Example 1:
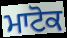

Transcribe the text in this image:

ਮਾਟੋਕ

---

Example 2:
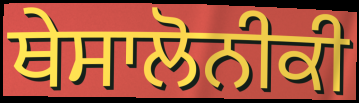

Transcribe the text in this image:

ਥੇਸਾਲੋਨੀਕੀ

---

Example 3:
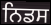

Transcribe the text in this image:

ਨਿਡਸ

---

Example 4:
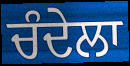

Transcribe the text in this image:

ਚੰਦੇਲਾ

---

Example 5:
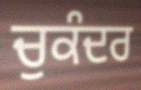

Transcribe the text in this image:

ਚੁਕੰਦਰ